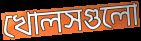
খোলসগুলো